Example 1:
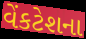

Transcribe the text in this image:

વેંકટેશના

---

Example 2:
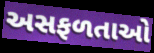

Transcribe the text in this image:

અસફળતાઓ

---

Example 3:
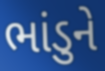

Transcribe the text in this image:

ભાંડુને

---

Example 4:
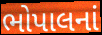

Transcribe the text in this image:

ભોપાલનાં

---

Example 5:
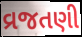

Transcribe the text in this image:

વ્રજતણી